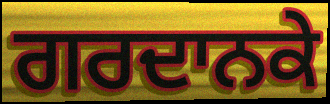
ਗਰਦਾਨਕੇ